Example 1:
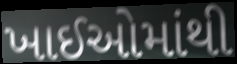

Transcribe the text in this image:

ખાઈઓમાંથી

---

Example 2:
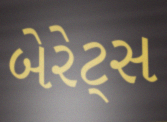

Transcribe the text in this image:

બેરેટ્સ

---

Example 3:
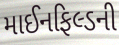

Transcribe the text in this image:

માઈનફિલ્ડની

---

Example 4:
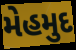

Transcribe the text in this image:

મેહમુદ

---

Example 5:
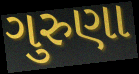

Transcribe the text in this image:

ગુરુણા